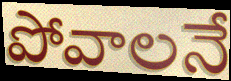
పోవాలనే